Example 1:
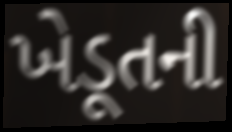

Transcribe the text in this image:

ખેડૂતની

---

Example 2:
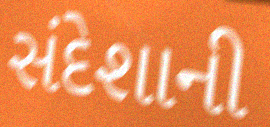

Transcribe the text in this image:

સંદેશાની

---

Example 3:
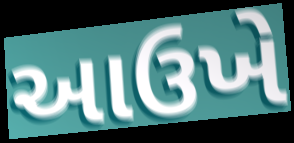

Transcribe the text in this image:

આઉખે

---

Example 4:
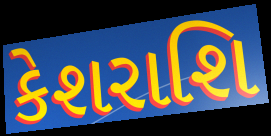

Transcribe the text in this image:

કેશરાશિ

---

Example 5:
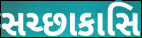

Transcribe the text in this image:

સચ્છાકાસિ